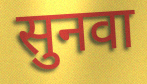
सुनवा